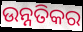
ଉନ୍ନତିକର